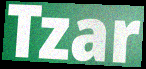
Tzar